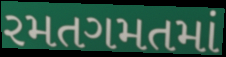
રમતગમતમાં